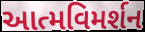
આત્મવિમર્શન